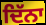
ਦਿੱਨਾ